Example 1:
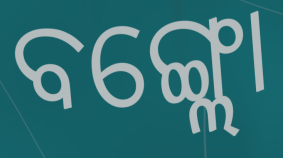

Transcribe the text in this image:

ବଙ୍ଗ୍ଲୋ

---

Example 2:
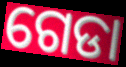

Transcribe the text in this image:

ଗେଡା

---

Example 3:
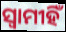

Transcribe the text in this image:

ସ୍ଵାମୀହିଁ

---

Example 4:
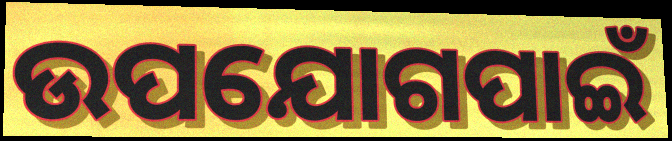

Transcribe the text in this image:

ଉପଯୋଗପାଇଁ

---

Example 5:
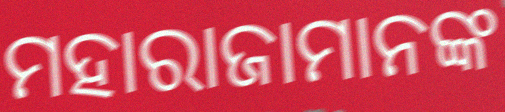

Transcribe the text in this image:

ମହାରାଜାମାନଙ୍କ